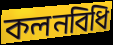
কলনবিধি